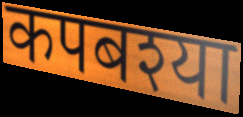
कपबश्या